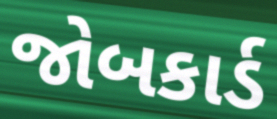
જોબકાર્ડ